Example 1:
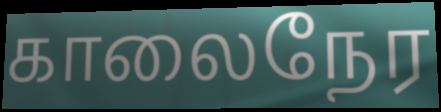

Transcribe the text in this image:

காலைநேர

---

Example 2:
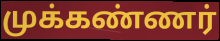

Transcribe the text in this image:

முக்கண்ணர்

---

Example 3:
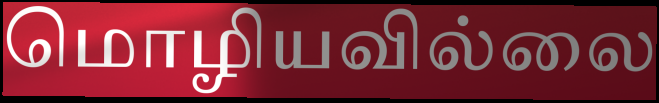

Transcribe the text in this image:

மொழியவில்லை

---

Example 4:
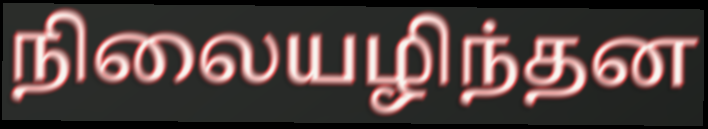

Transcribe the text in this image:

நிலையழிந்தன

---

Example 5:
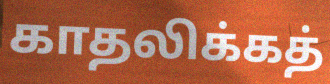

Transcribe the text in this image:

காதலிக்கத்